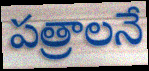
పత్రాలనే